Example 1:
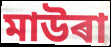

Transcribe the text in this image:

মাউৰা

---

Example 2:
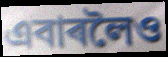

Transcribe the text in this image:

এবাৰলৈও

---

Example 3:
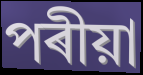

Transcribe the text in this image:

পৰীয়া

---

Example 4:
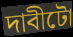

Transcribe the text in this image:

দাবীটো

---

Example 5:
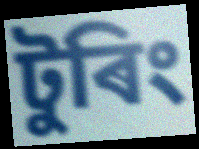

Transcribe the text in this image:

টুৰিং